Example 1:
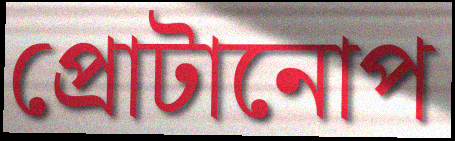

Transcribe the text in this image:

প্রোটানোপ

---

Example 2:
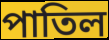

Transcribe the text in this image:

পাতিল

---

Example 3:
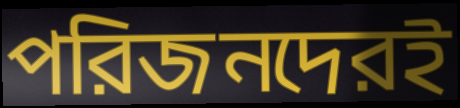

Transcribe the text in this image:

পরিজনদেরই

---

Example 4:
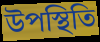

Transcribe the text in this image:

উপস্থিতি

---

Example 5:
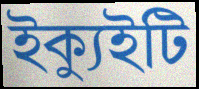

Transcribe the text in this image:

ইক্যুইটি